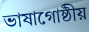
ভাষাগোষ্ঠীয়